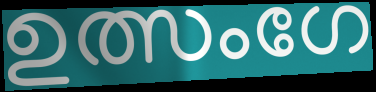
ഉത്സംഗേ